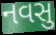
નવસુ